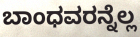
ಬಾಂಧವರನ್ನೆಲ್ಲ